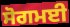
ਸੋਗਮਈ